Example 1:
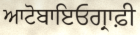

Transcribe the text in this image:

ਆਟੋਬਾਇਓਗ੍ਰਾਫ਼ੀ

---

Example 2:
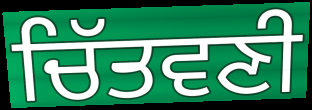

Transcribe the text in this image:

ਚਿੱਤਵਣੀ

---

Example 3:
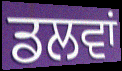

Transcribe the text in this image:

ਡਲਵਾਂ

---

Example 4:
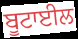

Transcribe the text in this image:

ਬੂਟਾਈਲ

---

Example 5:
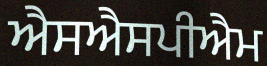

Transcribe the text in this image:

ਐਸਐਸਪੀਐਮ